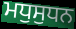
ਮਧੁਸੁਧਨ